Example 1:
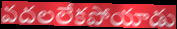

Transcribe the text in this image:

వదలలేకపోయాడు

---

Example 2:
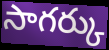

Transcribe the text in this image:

సాగర్కు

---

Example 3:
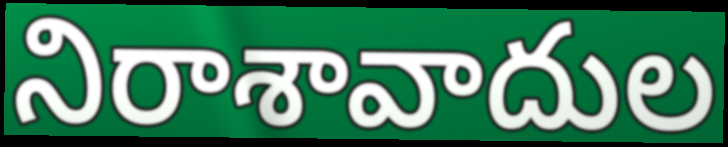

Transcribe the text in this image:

నిరాశావాదుల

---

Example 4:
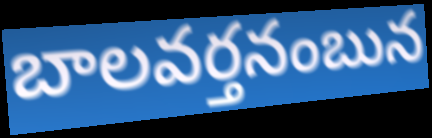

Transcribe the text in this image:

బాలవర్తనంబున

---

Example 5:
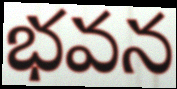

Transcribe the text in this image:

భవన